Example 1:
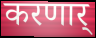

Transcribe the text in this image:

करणार्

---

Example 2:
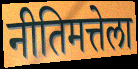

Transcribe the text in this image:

नीतिमत्तेला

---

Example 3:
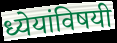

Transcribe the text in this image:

ध्येयांविषयी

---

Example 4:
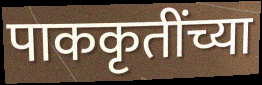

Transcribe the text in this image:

पाककृतींच्या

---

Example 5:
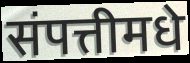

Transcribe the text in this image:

संपत्तीमधे